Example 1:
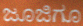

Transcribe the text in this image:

ಜೂಜಿಗೂ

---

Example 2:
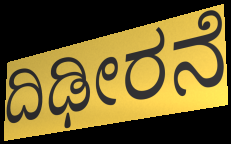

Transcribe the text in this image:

ದಿಢೀರನೆ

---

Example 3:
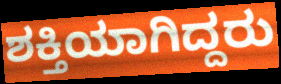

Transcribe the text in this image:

ಶಕ್ತಿಯಾಗಿದ್ದರು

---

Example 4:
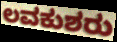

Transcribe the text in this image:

ಲವಕುಶರು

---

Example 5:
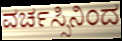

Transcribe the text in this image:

ವರ್ಚಸ್ಸಿನಿಂದ